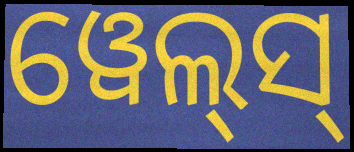
ୱେଲ୍‌ସ୍